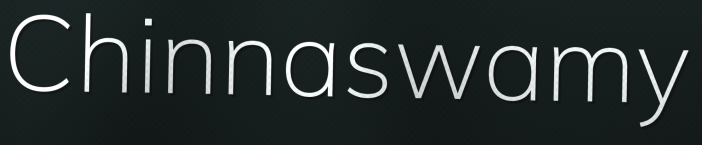
Chinnaswamy